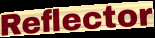
Reflector